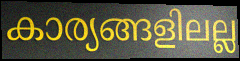
കാര്യങ്ങളിലല്ല